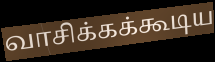
வாசிக்கக்கூடிய